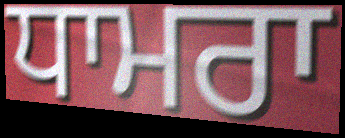
ਧਾਮਰਾ